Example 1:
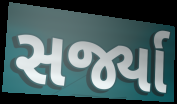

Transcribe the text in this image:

સર્જ્યા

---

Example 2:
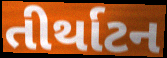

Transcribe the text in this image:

તીર્થાટન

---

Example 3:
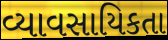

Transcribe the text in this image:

વ્યાવસાયિકતા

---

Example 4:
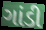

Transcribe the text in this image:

ગાંડી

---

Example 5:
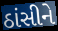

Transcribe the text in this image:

ઠાંસીને